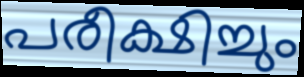
പരീക്ഷിച്ചും